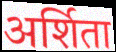
अर्शिता